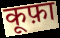
कूफ़ा